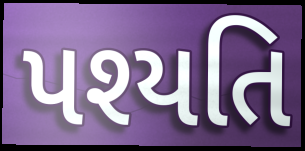
પશ્યતિ